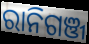
ରାନିଗଞ୍ଜ